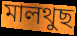
মালথুছ